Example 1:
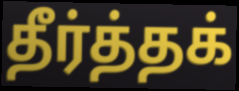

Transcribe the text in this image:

தீர்த்தக்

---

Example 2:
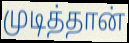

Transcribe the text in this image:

முடித்தான்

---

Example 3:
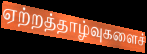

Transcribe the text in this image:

ஏற்றத்தாழ்வுகளைச்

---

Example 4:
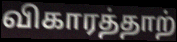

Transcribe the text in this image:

விகாரத்தாற்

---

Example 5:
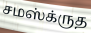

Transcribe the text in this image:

சமஸ்க்ருத